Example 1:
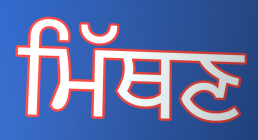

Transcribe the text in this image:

ਮਿੱਥਣ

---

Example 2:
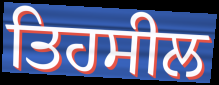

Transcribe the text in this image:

ਤਿਹਸੀਲ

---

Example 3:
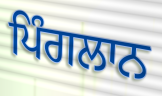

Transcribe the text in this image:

ਪਿੰਗਲਾਨ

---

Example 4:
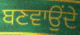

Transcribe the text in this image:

ਬਣਵਾਉਂਦੇ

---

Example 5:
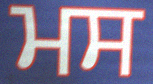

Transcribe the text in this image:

ਮਸ